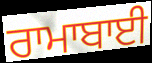
ਰਾਮਾਬਾਈ